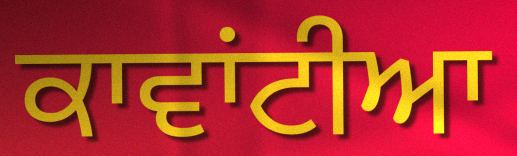
ਕਾਵਾਂਟੀਆ